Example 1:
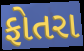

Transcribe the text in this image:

ફોતરા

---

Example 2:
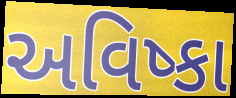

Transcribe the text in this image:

અવિષ્કા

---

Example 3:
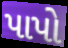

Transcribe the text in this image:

પાપો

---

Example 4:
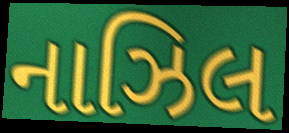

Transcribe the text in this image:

નાઝિલ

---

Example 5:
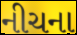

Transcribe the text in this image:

નીચના